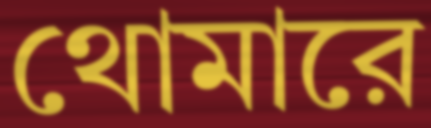
থোমারে